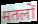
मतलों